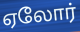
ஏலோர்